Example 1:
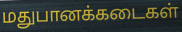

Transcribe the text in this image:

மதுபானக்கடைகள்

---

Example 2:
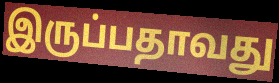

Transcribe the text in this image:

இருப்பதாவது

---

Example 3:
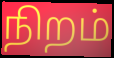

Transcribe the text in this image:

நிறம்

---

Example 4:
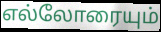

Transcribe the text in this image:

எல்லோரையும்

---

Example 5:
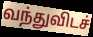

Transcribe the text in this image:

வந்துவிடச்